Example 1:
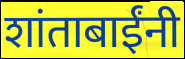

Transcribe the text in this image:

शांताबाईंनी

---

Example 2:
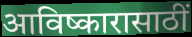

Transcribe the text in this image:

आविष्कारासाठीं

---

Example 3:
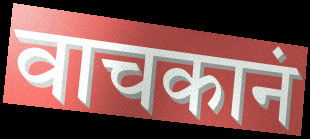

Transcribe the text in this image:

वाचकानं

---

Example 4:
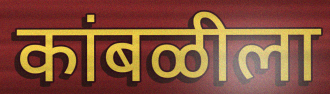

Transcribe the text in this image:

कांबळीला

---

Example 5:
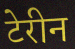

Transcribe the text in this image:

टेरीन